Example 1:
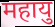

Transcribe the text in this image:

महायु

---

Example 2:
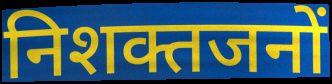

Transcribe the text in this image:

निशक्तजनों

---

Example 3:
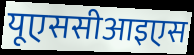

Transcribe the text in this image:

यूएससीआइएस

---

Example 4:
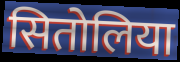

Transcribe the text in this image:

सितोलिया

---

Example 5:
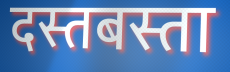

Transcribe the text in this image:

दस्तबस्ता